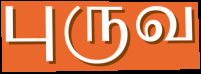
புருவ